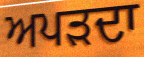
ਅਪੜਦਾ